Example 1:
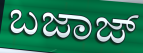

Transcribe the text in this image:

ಬಜಾಜ್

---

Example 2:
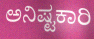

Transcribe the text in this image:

ಅನಿಷ್ಟಕಾರಿ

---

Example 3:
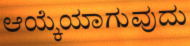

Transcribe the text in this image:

ಆಯ್ಕೆಯಾಗುವುದು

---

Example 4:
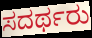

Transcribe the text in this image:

ಸದರ್ಥರು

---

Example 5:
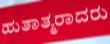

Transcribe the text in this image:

ಹುತಾತ್ಮರಾದರು